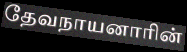
தேவநாயனாரின்